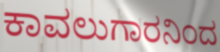
ಕಾವಲುಗಾರನಿಂದ